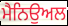
ਮੈਨਿਉਅਲ